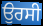
ਉਰਸੀ